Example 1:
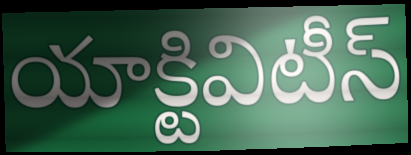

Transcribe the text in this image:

యాక్టివిటీస్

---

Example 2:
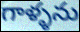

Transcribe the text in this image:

గాళ్ళను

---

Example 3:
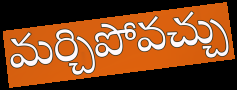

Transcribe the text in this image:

మర్చిపోవచ్చు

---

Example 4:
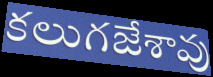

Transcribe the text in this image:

కలుగజేశావు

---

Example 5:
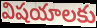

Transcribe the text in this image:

విషయాలకు